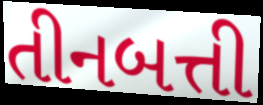
તીનબત્તી